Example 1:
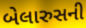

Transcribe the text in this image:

બેલારુસની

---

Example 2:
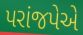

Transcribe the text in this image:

પરાંજપેએ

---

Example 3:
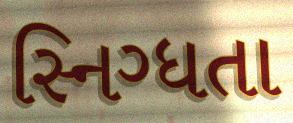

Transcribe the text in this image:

સ્નિગ્ધતા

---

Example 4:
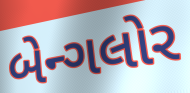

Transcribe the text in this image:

બેન્ગલોર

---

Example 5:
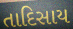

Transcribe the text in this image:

તાદિસાય